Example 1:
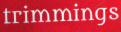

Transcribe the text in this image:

trimmings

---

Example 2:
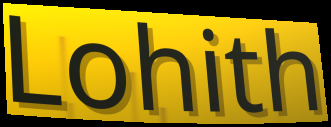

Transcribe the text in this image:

Lohith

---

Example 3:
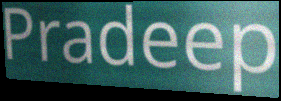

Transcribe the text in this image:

Pradeep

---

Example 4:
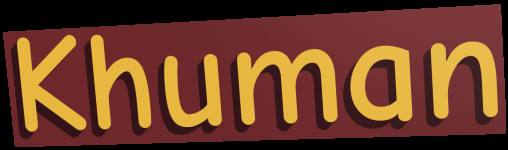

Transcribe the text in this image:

Khuman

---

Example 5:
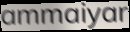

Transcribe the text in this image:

ammaiyar